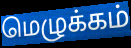
மெழுக்கம்